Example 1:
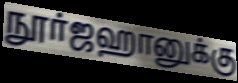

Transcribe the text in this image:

நூர்ஜஹானுக்கு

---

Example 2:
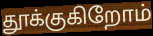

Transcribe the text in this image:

தூக்குகிறோம்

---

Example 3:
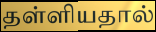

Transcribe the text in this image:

தள்ளியதால்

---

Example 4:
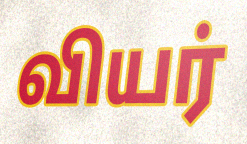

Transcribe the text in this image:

வியர்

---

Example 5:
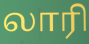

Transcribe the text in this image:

லாரி